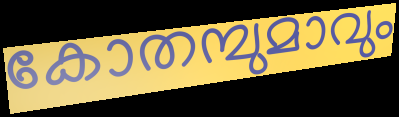
കോതമ്പുമാവും